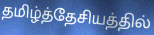
தமிழ்த்தேசியத்தில்